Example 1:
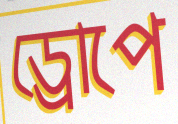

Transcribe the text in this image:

ড্ৰোপে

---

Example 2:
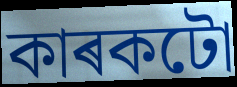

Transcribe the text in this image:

কাৰকটো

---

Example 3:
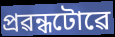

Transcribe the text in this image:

প্ৰৱন্ধটোৱে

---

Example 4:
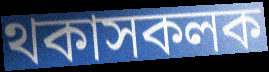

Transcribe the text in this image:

থকাসকলক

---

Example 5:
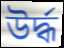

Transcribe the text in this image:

উৰ্দ্ধ